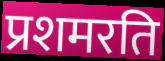
प्रशमरति